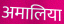
अमालिया